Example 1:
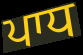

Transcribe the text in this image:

ਪਾਧ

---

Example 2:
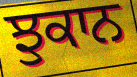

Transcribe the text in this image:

ਝੁਕਾਨ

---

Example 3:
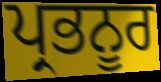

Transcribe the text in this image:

ਪ੍ਰਭਨੂਰ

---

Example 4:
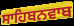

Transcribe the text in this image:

ਸਾਹਿਬਨਵਾਬ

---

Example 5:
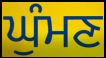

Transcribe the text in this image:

ਘੁੰਮਣ